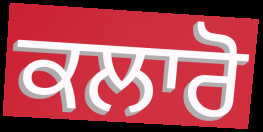
ਕਲਾਰੋ